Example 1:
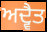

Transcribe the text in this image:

ਅਦ੍ਵੈਤ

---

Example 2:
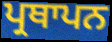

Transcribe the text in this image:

ਪ੍ਰਥਾਪਨ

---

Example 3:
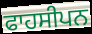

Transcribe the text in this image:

ਫਾਹਸੀਪਨ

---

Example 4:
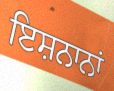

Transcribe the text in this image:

ਇਸ਼ਨਾਨਾਂ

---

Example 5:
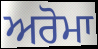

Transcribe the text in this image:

ਅਰੋਮਾ